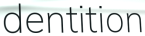
dentition